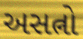
અસત્નો